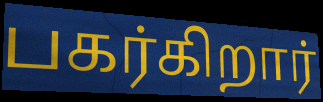
பகர்கிறார்